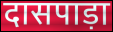
दासपाड़ा